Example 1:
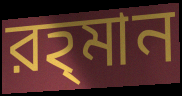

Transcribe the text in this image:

রহ্‌মান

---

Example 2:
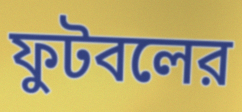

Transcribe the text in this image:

ফুটবলের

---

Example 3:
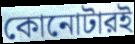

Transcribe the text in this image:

কোনোটারই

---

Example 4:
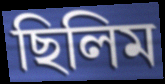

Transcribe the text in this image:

ছিলিম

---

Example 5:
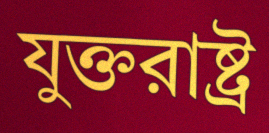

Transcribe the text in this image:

যুক্তরাষ্ট্র